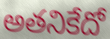
అతనికేదో